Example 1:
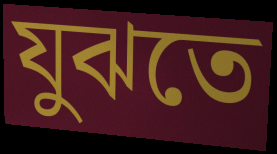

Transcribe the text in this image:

যুঝতে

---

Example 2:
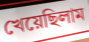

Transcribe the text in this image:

খেয়েছিলাম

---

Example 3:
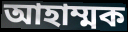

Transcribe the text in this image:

আহাম্মক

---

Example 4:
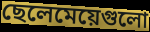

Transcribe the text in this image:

ছেলেমেয়েগুলো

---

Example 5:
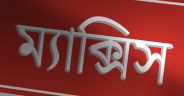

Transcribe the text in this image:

ম্যাক্সিস